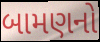
બામણનો